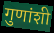
गुणांशी